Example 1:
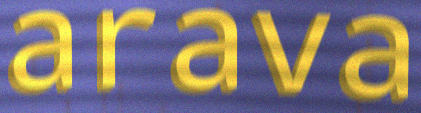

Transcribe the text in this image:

arava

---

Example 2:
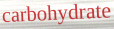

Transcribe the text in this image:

carbohydrate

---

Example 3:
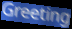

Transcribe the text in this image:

Greeting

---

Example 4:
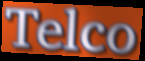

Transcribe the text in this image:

Telco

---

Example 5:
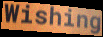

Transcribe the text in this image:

Wishing